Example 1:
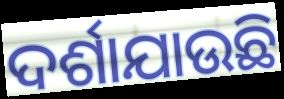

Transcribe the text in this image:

ଦର୍ଶାଯାଉଛି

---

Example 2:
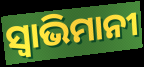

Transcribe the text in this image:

ସ୍ବାଭିମାନୀ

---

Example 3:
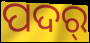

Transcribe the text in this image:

ପଦର୍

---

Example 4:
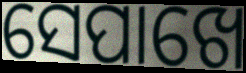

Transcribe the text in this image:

ସେପାଖେ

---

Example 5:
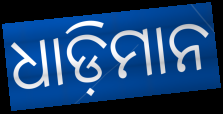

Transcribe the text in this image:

ଧାଡ଼ିମାନ